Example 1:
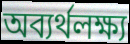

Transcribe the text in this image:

অব্যর্থলক্ষ্য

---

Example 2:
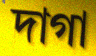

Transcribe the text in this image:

দাগা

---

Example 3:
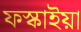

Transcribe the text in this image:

ফস্কাইয়া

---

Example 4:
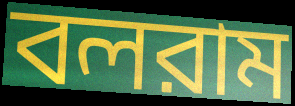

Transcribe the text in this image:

বলরাম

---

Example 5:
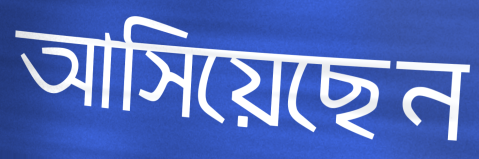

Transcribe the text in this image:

আসিয়েছেন